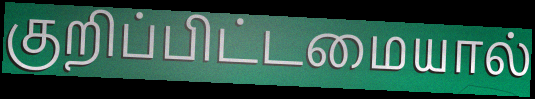
குறிப்பிட்டமையால்